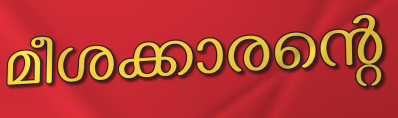
മീശക്കാരന്റെ